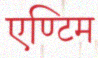
एण्टिम